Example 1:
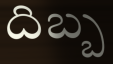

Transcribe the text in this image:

దిబ్బ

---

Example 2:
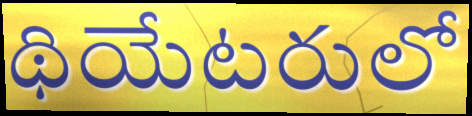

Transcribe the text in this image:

థియేటరులో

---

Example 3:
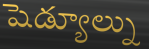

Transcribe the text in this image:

షెడ్యూల్ను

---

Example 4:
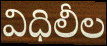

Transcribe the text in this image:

విధిలీల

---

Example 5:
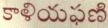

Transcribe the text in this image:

కాళియఫణి